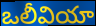
ఒలీవియా